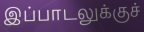
இப்பாடலுக்குச்